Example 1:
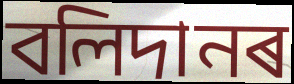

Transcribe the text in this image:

বলিদানৰ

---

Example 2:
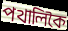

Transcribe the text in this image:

পথালিকৈ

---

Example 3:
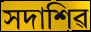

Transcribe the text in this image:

সদাশিৱ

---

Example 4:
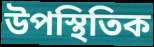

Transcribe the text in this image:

উপস্থিতিক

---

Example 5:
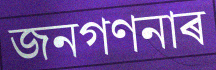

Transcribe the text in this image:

জনগণনাৰ